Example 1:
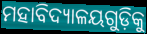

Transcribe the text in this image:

ମହାବିଦ୍ୟାଳୟଗୁଡ଼ିକୁ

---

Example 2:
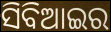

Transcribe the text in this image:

ସିବିଆଇର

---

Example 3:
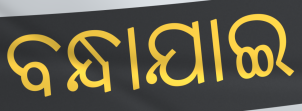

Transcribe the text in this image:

ବନ୍ଧାଯାଇ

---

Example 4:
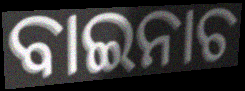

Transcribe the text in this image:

ବାଇନାଚ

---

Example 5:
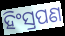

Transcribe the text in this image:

ହିଂସ୍ରପଣ